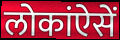
लोकांऐसें